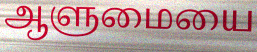
ஆளுமையை